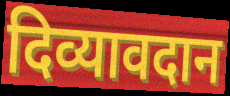
दिव्यावदान